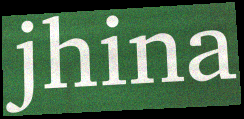
jhina